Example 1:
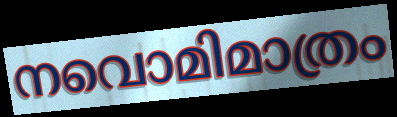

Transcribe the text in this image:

നവൊമിമാത്രം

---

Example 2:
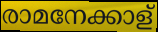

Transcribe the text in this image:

രാമനേക്കാള്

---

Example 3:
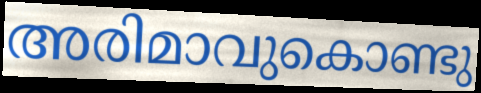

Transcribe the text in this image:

അരിമാവുകൊണ്ടു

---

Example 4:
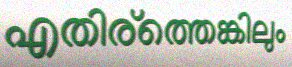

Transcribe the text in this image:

എതിര്ത്തെങ്കിലും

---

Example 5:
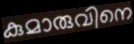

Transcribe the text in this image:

കുമാരുവിനെ